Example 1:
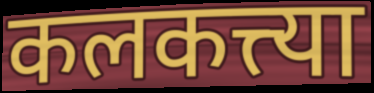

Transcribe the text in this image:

कलकत्त्या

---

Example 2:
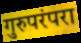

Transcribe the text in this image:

गुरुपरंपरा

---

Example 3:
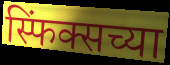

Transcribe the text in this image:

स्फिंक्सच्या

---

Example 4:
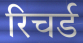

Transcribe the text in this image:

रिचर्ड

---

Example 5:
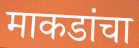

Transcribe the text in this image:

माकडांचा